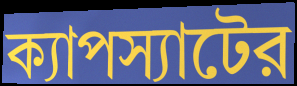
ক্যাপস্যাটের